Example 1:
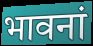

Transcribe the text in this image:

भावनां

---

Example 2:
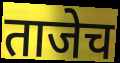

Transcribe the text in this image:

ताजेच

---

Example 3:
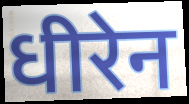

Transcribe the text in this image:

धीरेन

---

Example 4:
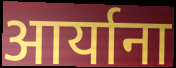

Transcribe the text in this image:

आर्याना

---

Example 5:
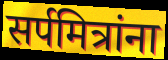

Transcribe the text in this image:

सर्पमित्रांना